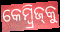
କେମ୍ୱ୍ରିଜ୍‌କୁ